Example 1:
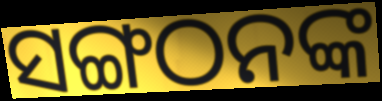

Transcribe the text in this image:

ସଙ୍ଗଠନଙ୍କ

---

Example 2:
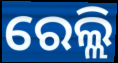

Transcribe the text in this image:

ରେଲ୍ଲି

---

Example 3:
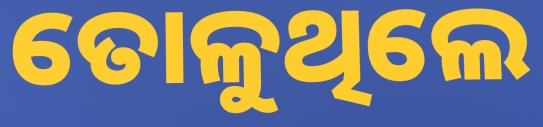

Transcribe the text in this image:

ତୋଳୁଥିଲେ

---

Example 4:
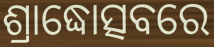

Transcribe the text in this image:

ଶ୍ରାଦ୍ଧୋତ୍ସବରେ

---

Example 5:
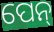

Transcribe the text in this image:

ପେନ୍